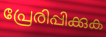
പ്രേരിപ്പിക്കുക